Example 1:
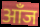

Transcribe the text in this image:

आँज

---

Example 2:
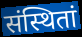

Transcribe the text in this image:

संस्थितां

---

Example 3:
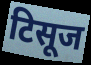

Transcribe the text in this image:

टिसूज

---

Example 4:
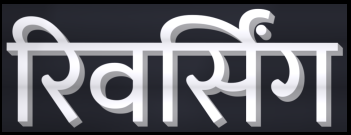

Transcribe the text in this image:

रिवर्सिंग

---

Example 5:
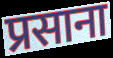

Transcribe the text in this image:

प्रसाना